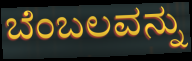
ಬೆಂಬಲವನ್ನು